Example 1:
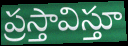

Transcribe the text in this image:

ప్రస్తావిస్తూ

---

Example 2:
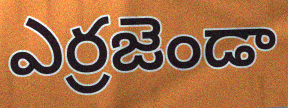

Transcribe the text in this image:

ఎర్రజెండా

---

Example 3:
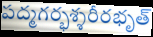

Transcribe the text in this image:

పద్మగర్భశ్శరీరభృత్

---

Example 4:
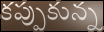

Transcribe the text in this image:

కప్పుకున్న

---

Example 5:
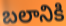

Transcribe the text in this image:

బలానికి